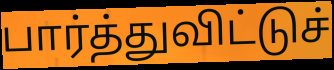
பார்த்துவிட்டுச்